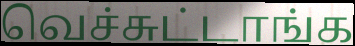
வெச்சுட்டாங்க